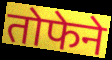
तोफेने